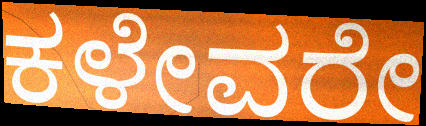
ಕಳೇವರೇ